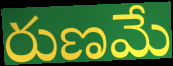
రుణమే